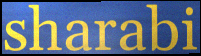
sharabi